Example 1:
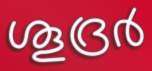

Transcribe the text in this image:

ശൂദ്രർ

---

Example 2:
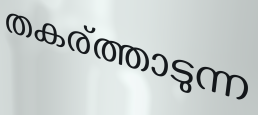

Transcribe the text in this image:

തകര്ത്താടുന്ന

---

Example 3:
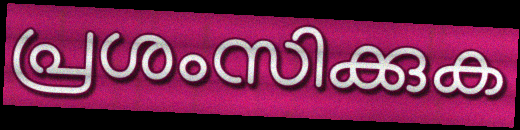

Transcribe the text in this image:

പ്രശംസിക്കുക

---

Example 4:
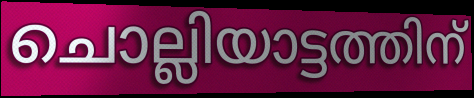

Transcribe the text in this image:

ചൊല്ലിയാട്ടത്തിന്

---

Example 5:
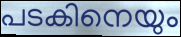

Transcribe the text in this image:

പടകിനെയും